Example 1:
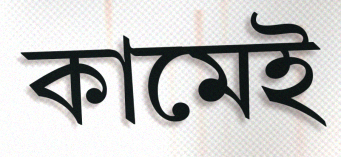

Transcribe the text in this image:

কামেই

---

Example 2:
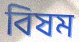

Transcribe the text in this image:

বিষম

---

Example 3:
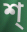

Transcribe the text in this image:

শ্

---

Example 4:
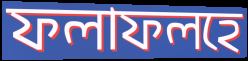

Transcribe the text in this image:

ফলাফলহে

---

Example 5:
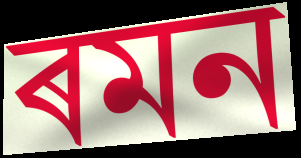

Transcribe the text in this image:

ৰমন